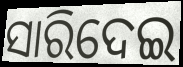
ସାରିଦେଇ